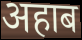
अहाब